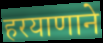
हरयाणाने